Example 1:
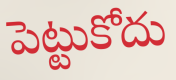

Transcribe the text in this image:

పెట్టుకోదు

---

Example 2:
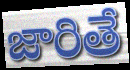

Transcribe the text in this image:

జారితే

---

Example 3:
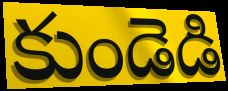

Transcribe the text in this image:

కుండెడి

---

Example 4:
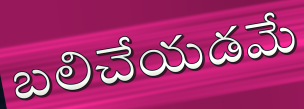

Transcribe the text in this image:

బలిచేయడమే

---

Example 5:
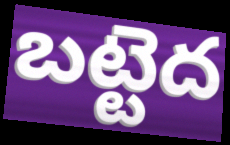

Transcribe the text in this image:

బట్టెద